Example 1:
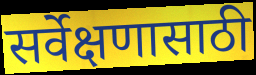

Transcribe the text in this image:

सर्वेक्षणासाठी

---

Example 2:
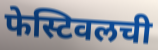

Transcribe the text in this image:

फेस्टिवलची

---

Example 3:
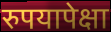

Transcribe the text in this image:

रुपयापेक्षा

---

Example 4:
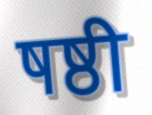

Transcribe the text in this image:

षष्ठी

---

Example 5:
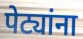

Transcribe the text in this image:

पेट्यांना